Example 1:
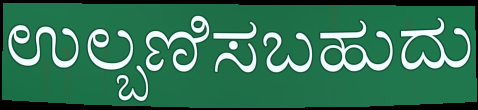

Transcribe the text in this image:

ಉಲ್ಬಣಿಸಬಹುದು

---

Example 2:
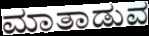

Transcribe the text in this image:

ಮಾತಾಡುವ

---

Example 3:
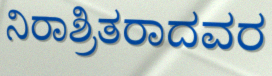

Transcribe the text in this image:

ನಿರಾಶ್ರಿತರಾದವರ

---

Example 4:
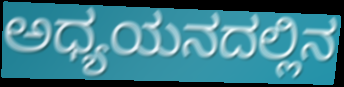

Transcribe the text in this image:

ಅಧ್ಯಯನದಲ್ಲಿನ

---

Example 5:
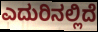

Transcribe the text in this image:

ಎದುರಿನಲ್ಲಿದೆ